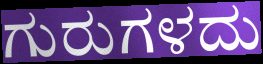
ಗುರುಗಳದು